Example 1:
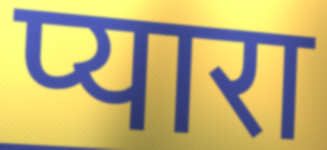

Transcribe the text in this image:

प्यारा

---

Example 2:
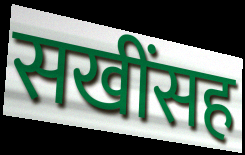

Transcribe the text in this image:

सखींसह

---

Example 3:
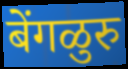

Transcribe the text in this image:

बेंगळुरु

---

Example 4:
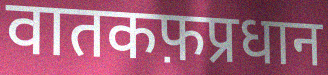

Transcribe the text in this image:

वातकफ़प्रधान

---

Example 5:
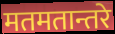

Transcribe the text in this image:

मतमतान्तरे